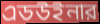
এডউইনার